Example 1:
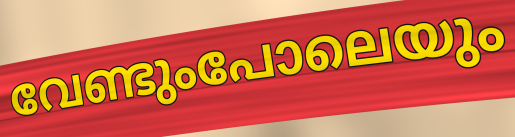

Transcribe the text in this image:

വേണ്ടുംപോലെയും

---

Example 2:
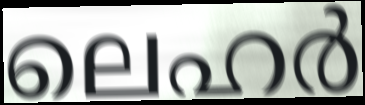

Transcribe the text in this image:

ലെഹർ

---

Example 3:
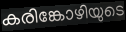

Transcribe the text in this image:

കരിങ്കോഴിയുടെ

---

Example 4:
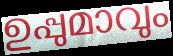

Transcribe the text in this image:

ഉപ്പുമാവും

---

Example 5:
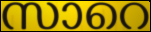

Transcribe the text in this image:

സാറെ